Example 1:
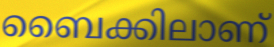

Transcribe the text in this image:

ബൈക്കിലാണ്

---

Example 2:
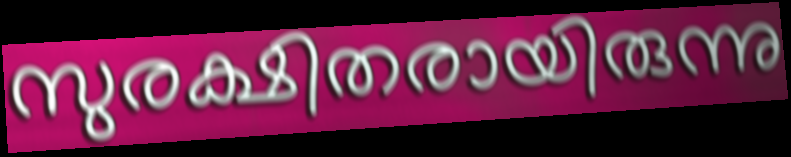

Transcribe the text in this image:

സുരക്ഷിതരായിരുന്നു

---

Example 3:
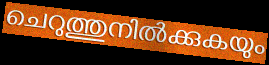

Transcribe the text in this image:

ചെറുത്തുനിൽക്കുകയും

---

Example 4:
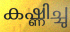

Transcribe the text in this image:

കഷ്ണിച്ചു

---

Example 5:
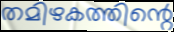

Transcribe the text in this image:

തമിഴകത്തിന്റെ